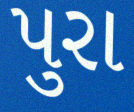
પુરા